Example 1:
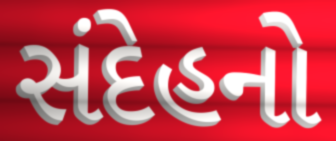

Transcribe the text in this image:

સંદેહનો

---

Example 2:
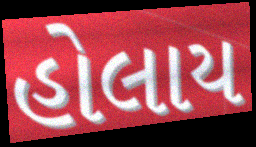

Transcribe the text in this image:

હોલાય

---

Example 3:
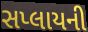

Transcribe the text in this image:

સપ્લાયની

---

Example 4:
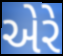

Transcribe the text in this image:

એરે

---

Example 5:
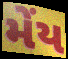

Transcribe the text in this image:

મેંય